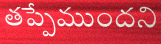
తప్పేముందని